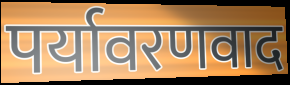
पर्यावरणवाद